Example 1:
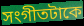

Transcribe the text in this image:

সংগীতটাকে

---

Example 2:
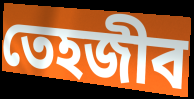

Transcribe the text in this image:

তেহজীব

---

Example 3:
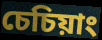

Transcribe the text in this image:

চেচিয়াং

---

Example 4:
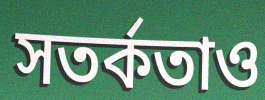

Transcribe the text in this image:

সতর্কতাও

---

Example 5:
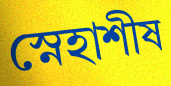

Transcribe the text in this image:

স্নেহাশীষ